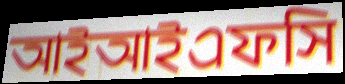
আইআইএফসি